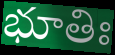
భూతిః